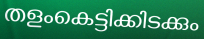
തളംകെട്ടിക്കിടക്കും